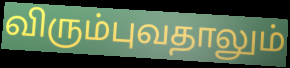
விரும்புவதாலும்